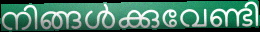
നിങ്ങൾക്കുവേണ്ടി